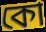
কো